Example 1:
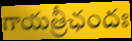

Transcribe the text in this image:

గాయత్రీఛందః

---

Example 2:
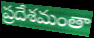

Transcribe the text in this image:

ప్రదేశమంతా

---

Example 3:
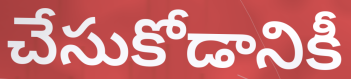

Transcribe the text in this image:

చేసుకోడానికీ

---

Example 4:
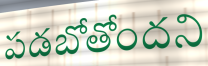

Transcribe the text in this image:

పడబోతోందని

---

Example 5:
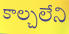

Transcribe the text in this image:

కాల్చలేని